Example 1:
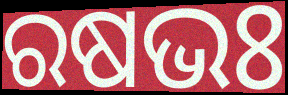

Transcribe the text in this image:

ରଷଭଃ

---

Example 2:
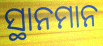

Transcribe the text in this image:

ସ୍ଥାନମାନ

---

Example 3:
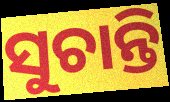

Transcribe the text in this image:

ସୁଚାନ୍ତି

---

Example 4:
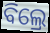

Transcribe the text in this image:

ବିଲ୍ରେ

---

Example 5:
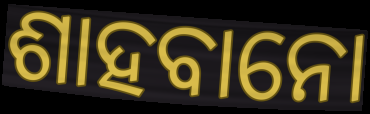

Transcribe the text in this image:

ଶାହବାନୋ